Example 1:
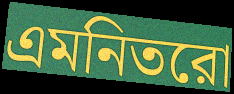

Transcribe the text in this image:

এমনিতরো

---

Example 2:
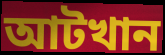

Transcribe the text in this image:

আটখান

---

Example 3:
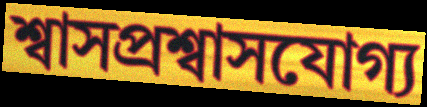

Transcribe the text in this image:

শ্বাসপ্রশ্বাসযোগ্য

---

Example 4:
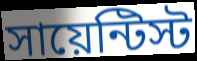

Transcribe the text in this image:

সায়েন্টিস্ট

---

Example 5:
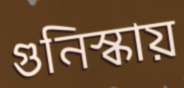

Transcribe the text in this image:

গুনিস্কায়